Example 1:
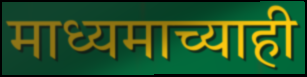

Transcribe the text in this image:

माध्यमाच्याही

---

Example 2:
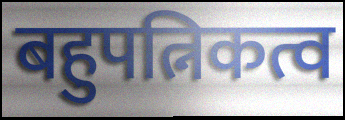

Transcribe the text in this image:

बहुपत्निकत्व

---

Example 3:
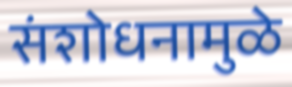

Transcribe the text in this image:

संशोधनामुळे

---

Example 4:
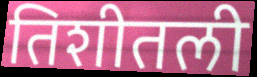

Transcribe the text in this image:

तिशीतली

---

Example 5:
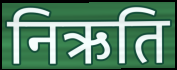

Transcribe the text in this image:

निऋति